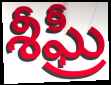
శీఘ్రీ